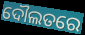
ଦୌଲତରେ